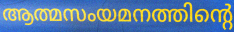
ആത്മസംയമനത്തിന്റെ